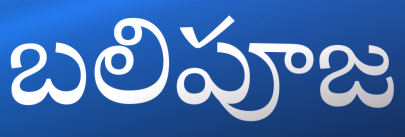
బలిపూజ